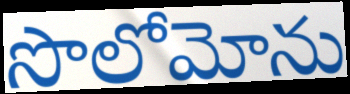
సొలోమోను